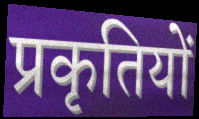
प्रकृतियों